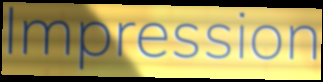
Impression